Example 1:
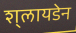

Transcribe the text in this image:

श्लायडेन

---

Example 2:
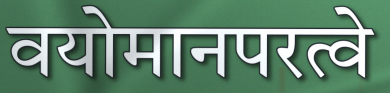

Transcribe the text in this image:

वयोमानपरत्वे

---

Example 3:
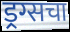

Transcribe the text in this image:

ड्रग्सचा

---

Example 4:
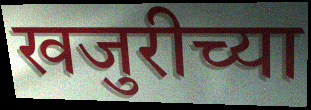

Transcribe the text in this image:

खजुरीच्या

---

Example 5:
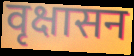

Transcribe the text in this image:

वृक्षासन